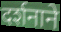
दर्शनाने